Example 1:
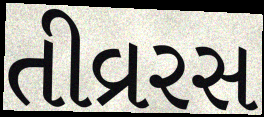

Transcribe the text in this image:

તીવ્રરસ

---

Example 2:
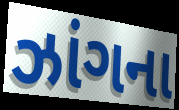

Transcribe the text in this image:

ઝાંગના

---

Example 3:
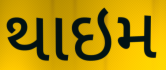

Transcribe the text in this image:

થાઇમ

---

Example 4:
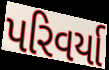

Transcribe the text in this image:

પરિવર્યા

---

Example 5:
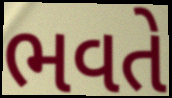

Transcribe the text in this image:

ભવતે